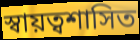
স্বায়ত্বশাসিত